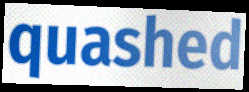
quashed